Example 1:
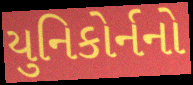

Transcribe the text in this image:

યુનિકોર્નનો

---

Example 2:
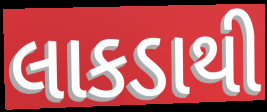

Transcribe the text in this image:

લાકડાથી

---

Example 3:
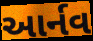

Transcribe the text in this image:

આર્નવ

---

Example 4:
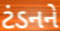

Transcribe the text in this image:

ટંડનને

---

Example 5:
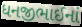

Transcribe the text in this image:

ધનજીભાઈનાં